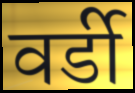
वर्डी